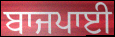
ਬਾਜਪਾਈ